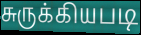
சுருக்கியபடி